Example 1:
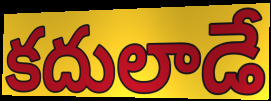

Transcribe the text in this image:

కదులాడే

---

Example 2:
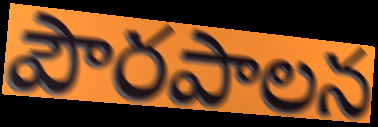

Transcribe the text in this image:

పౌరపాలన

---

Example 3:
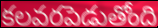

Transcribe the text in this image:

కలవరపెడుతోంది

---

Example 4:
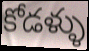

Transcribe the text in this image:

కోడళ్ళు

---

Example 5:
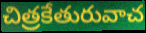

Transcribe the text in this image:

చిత్రకేతురువాచ